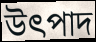
উৎপাদ